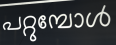
പറ്റുമ്പോൾ